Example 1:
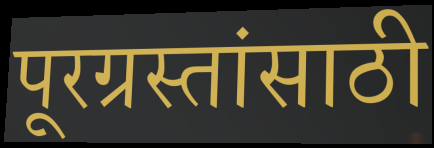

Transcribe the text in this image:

पूरग्रस्तांसाठी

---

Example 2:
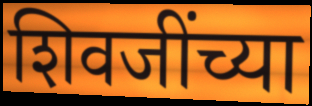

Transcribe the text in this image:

शिवजींच्या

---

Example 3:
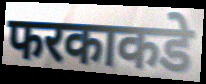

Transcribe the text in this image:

फरकाकडे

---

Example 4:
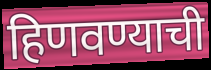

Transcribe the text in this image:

हिणवण्याची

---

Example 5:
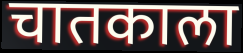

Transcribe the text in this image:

चातकाला